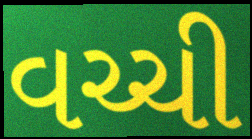
વચ્ચી